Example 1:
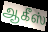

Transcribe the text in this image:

ஆகீஸ்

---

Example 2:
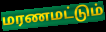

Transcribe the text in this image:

மரணமட்டும்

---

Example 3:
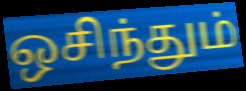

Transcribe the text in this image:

ஒசிந்தும்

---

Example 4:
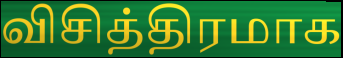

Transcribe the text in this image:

விசித்திரமாக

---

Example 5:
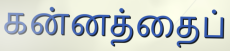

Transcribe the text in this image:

கன்னத்தைப்